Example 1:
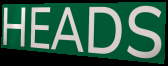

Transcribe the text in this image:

HEADS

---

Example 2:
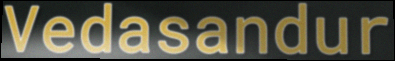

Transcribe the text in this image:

Vedasandur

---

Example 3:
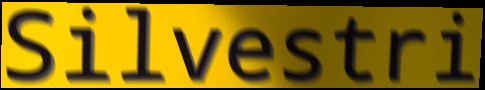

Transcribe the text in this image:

Silvestri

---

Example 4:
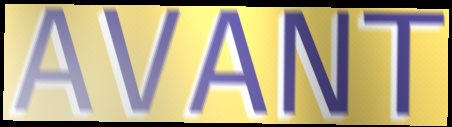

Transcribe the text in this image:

AVANT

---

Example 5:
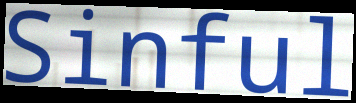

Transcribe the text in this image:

Sinful